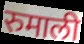
रुमाली